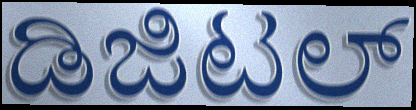
ಡಿಜಿಟಲ್